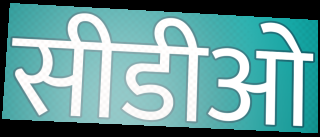
सीडीओ